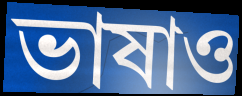
ভাষাও